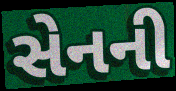
સેનની